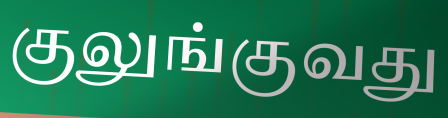
குலுங்குவது